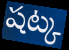
షట్క